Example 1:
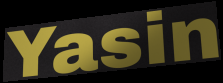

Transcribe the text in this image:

Yasin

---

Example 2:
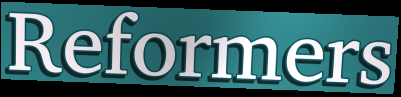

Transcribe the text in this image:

Reformers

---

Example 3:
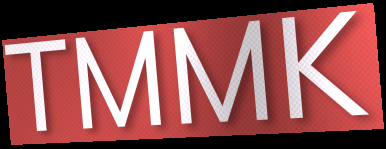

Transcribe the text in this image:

TMMK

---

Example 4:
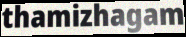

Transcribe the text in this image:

thamizhagam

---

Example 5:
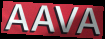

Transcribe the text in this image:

AAVA